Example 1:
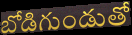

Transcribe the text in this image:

బోడిగుండుతో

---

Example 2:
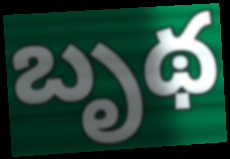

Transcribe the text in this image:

బృథ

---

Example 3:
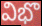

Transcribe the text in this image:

విభొ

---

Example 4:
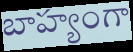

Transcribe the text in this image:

బాహ్యంగా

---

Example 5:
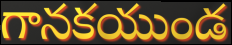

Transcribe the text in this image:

గానకయుండ